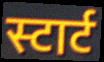
स्टार्ट